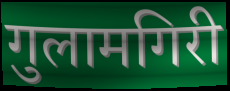
गुलामगिरी